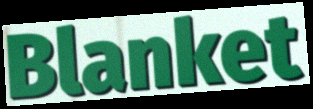
Blanket